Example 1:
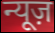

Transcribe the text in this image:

न्यूज़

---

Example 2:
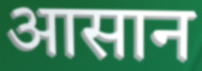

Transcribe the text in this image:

आसान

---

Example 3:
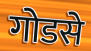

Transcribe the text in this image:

गोडसे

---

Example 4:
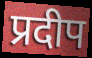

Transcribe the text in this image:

प्रदीप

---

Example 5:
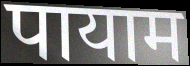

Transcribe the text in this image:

पायाम